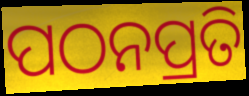
ପଠନପ୍ରତି